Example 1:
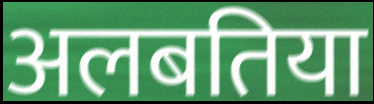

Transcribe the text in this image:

अलबतिया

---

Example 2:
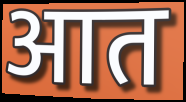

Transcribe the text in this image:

आत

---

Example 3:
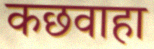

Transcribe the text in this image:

कछवाहा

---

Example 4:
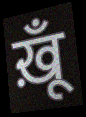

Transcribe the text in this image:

ख़ूँ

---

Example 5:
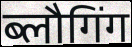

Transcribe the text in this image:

ब्लौगिंग